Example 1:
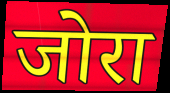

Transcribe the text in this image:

जोरा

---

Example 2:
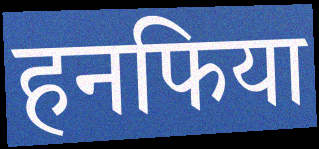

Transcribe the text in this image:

हनफिया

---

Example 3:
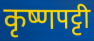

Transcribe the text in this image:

कृष्णपट्टी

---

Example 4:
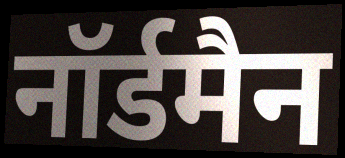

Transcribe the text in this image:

नॉर्डमैन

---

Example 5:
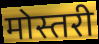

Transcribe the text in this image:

मोस्तरी